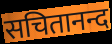
सचितानन्द